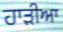
ਹਾੜੀਆ